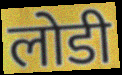
लोडी